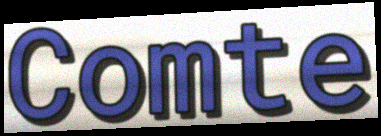
Comte